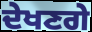
ਦੇਖਣਗੇ